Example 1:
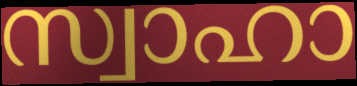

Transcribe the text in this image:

സ്വാഹാ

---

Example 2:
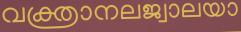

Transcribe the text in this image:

വക്ത്രാനലജ്വാലയാ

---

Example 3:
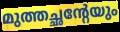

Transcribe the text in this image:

മുത്തച്ഛന്റേയും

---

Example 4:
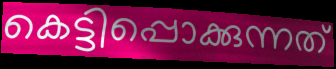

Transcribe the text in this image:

കെട്ടിപ്പൊക്കുന്നത്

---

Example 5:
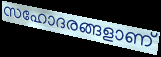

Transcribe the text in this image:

സഹോദരങ്ങളാണ്